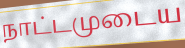
நாட்டமுடைய